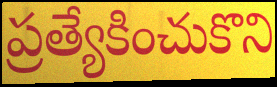
ప్రత్యేకించుకొని